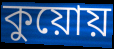
কুয়োয়